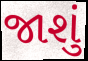
જાશું